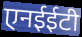
एनईईटी